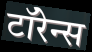
टॉरेन्स